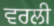
ਵਰਲੀ